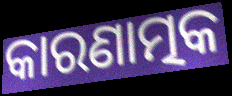
କାରଣାତ୍ମକ